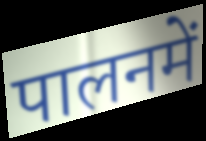
पालनमें